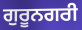
ਗੁਰੂਨਗਰੀ